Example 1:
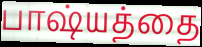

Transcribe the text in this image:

பாஷ்யத்தை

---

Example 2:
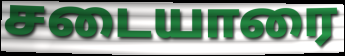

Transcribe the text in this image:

சடையாரை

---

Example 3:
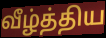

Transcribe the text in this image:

வீழ்த்திய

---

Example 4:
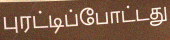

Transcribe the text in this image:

புரட்டிப்போட்டது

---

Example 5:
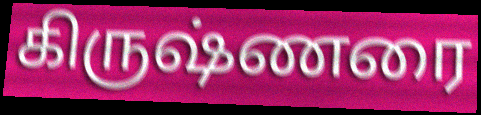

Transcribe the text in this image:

கிருஷ்ணரை